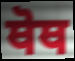
ਥੋਥ